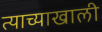
त्याच्याखाली